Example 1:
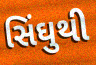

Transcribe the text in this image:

સિંઘુથી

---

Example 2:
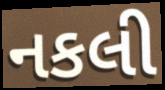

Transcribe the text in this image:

નકલી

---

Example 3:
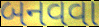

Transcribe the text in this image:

બનવવા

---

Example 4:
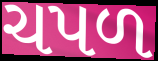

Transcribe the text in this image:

ચપળ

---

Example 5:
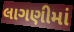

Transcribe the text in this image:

લાગણીમાં